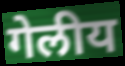
गेलीय